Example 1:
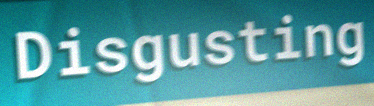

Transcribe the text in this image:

Disgusting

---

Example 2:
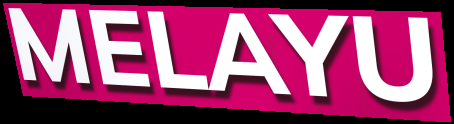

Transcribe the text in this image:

MELAYU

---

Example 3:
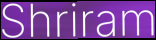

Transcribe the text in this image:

Shriram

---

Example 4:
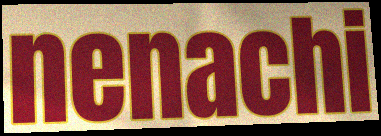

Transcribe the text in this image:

nenachi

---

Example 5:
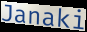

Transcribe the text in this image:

Janaki